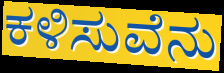
ಕಳಿಸುವೆನು